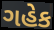
ગહેક